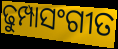
ଢୁମ୍ପାସଂଗୀତ